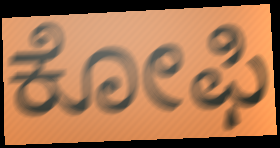
ಕೋಫಿ